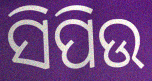
ସିପିଉ